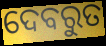
ଦେବରୁତ